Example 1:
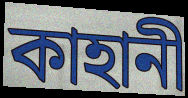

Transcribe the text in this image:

কাহানী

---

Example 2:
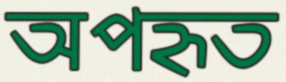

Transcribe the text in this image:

অপহৃত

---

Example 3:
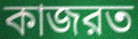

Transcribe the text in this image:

কাজরত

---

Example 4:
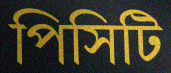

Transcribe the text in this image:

পিসিটি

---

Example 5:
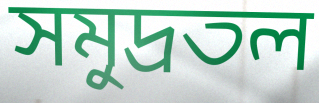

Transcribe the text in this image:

সমুদ্রতল